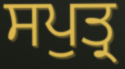
ਸਪੁਤ੍ਰ